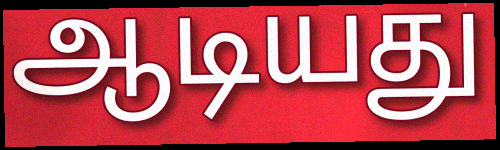
ஆடியது